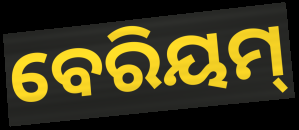
ବେରିୟମ୍